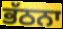
ਭੱਠਨਾ